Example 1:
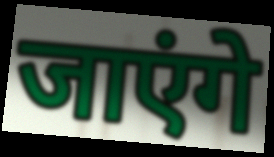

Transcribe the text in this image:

जाएंगे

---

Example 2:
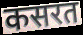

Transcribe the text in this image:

कसरत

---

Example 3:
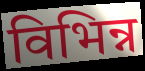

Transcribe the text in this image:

विभिन्न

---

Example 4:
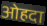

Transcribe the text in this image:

ओहदा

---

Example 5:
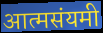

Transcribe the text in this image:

आत्मसंयमी